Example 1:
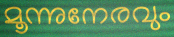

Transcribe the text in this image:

മൂന്നുനേരവും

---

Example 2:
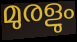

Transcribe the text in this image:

മുരളും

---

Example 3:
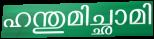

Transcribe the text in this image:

ഹന്തുമിച്ഛാമി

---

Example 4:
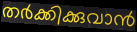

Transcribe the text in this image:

തർക്കിക്കുവാൻ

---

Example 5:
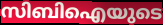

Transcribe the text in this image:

സിബിഐയുടെ